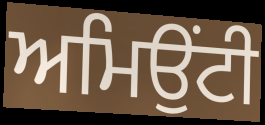
ਅਮਿਉਂਟੀ